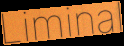
Liminal